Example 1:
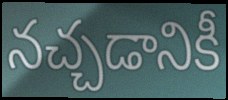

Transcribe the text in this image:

నచ్చడానికీ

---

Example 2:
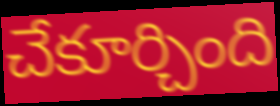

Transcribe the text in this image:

చేకూర్చింది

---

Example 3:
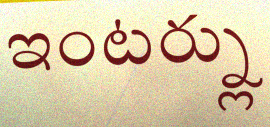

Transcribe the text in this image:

ఇంటర్న్లు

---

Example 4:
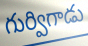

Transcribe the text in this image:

గుర్విగాడు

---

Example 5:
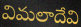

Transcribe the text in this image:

విమలాదేవి